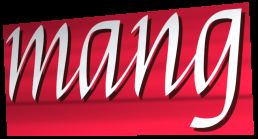
mang